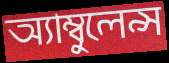
অ্যাম্বুলেন্স